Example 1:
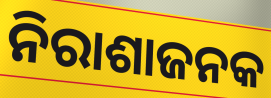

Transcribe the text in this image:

ନିରାଶାଜନକ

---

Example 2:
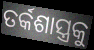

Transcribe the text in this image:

ତର୍କଶାସ୍ତ୍ରକୁ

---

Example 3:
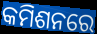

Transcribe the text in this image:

କମିଶନରେ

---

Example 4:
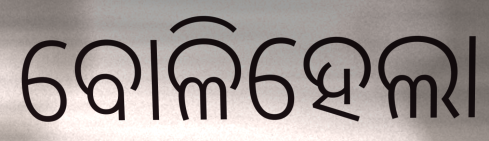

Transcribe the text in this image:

ବୋଳିହେଲା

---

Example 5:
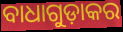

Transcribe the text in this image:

ବାଧାଗୁଡ଼ାକର